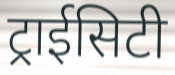
ट्राईसिटी